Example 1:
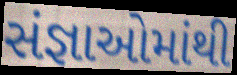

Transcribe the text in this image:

સંજ્ઞાઓમાંથી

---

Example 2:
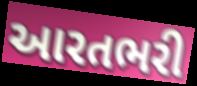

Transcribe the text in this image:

આરતભરી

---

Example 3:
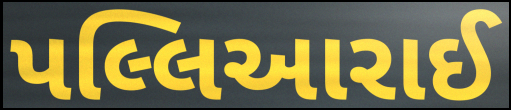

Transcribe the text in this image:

પલ્લિઆરાઈ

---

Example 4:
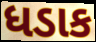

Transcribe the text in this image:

ધડાક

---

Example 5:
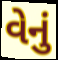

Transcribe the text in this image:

વેનું